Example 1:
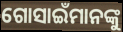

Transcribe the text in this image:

ଗୋସାଇଁମାନଙ୍କୁ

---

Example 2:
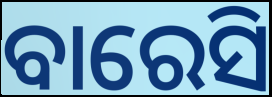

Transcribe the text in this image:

ବାରେସି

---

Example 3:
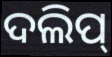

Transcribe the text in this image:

ଦଲିପ୍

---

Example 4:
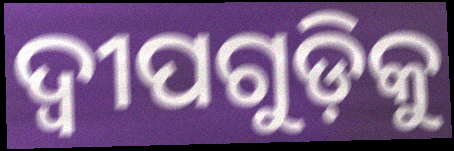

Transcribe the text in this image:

ଦ୍ୱୀପଗୁଡ଼ିକୁ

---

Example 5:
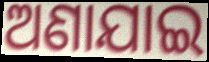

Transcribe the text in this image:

ଅଣାଯାଇ